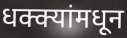
धक्क्यांमधून